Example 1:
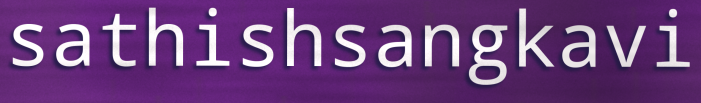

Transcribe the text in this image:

sathishsangkavi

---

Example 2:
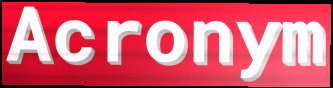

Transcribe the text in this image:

Acronym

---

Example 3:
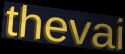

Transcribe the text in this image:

thevai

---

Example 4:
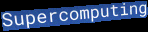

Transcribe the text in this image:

Supercomputing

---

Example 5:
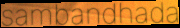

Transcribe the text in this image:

sambandhada